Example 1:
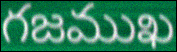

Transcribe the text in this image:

గజముఖ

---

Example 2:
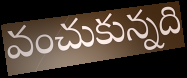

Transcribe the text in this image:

వంచుకున్నది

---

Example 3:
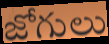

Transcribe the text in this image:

జోగులు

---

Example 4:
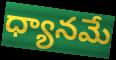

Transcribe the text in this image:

ధ్యానమే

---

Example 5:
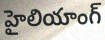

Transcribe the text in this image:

హైలియాంగ్